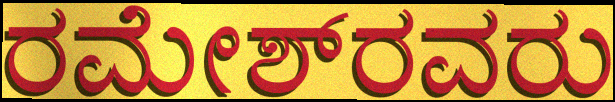
ರಮೇಶ್‌ರವರು